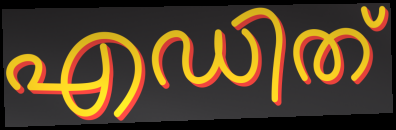
എഡിത്